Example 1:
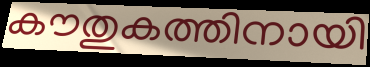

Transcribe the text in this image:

കൗതുകത്തിനായി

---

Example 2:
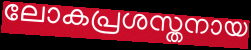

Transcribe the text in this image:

ലോകപ്രശസ്തനായ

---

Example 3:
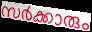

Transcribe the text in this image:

സർക്കാരും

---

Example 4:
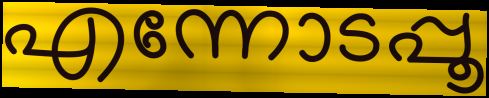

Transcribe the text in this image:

എന്നോടപ്പൂ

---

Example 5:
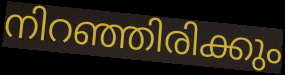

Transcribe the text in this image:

നിറഞ്ഞിരിക്കും